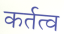
कर्तत्व